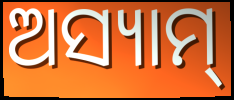
ଅସ୍ୟାମ୍